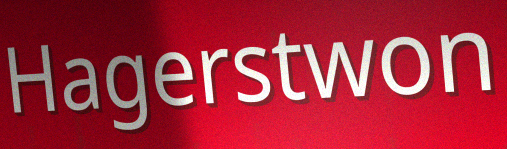
Hagerstwon